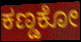
ಕಣ್ಡಕೋ